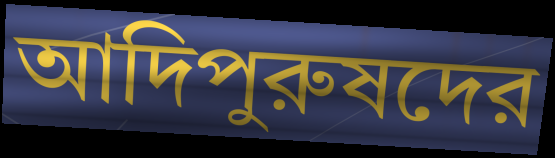
আদিপুরুষদের